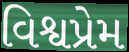
વિશ્વપ્રેમ